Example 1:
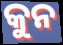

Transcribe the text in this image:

କୁନ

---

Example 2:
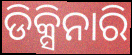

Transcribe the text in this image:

ଡିକ୍ସିନାରି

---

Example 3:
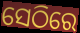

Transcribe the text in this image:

ସେଠିରେ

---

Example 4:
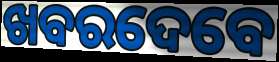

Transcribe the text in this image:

ଖବରଦେବେ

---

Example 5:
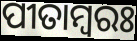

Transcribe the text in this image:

ପୀତାମ୍ୱରଃ